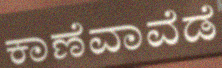
ಕಾಣೆವಾವೆಡೆ